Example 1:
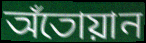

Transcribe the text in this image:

অঁতোয়ান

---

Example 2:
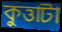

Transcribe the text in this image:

কুত্তাটা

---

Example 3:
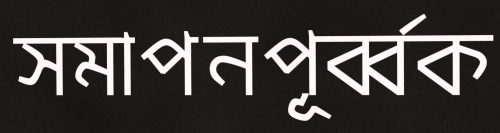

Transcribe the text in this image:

সমাপনপূর্ব্বক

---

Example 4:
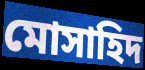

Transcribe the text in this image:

মোসাহিদ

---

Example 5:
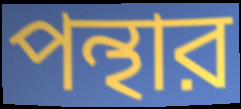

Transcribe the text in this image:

পন্থার